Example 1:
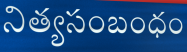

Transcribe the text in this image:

నిత్యసంబంధం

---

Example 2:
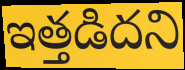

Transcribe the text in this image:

ఇత్తడిదని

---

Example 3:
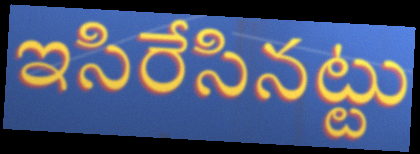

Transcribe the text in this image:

ఇసిరేసినట్టు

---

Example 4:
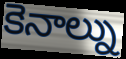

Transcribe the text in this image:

కెనాల్ను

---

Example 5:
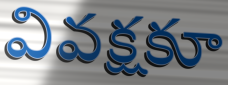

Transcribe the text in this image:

వివక్షకూ